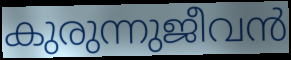
കുരുന്നുജീവൻ